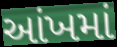
આંખમાં